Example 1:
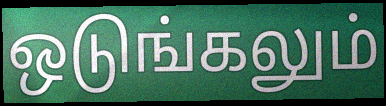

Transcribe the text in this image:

ஒடுங்கலும்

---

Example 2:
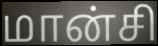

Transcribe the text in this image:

மான்சி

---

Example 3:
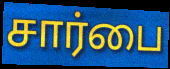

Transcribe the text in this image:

சார்பை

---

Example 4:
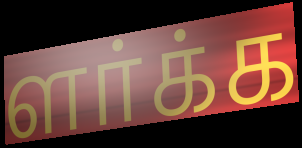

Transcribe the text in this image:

ளர்க்க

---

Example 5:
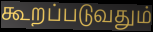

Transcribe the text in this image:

கூறப்படுவதும்